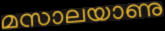
മസാലയാണു